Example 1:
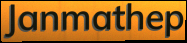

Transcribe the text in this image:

Janmathep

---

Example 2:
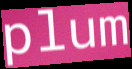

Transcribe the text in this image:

plum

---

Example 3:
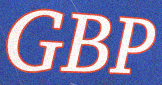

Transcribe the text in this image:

GBP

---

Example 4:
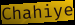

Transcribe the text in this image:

Chahiye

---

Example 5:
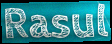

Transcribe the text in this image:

Rasul